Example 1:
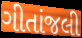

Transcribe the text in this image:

ગીતાંજલી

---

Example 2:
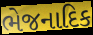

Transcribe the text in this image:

ભેજનાદિક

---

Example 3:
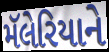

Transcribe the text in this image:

મૅલેરિયાને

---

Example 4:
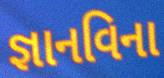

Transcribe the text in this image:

જ્ઞાનવિના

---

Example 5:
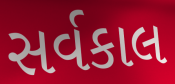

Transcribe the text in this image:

સર્વકાલ